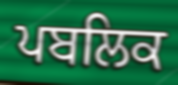
ਪਬਲਿਕ